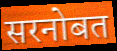
सरनोबत